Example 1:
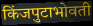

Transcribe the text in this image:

किंजपुटाभोवती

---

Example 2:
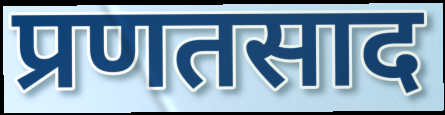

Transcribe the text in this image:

प्रणतसाद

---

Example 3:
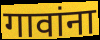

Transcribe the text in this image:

गावांना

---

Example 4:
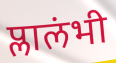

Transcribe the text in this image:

प्लालंभी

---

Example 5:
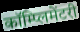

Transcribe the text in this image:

कॉम्प्लिमेंटरी